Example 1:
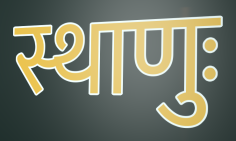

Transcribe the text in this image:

स्थाणुः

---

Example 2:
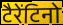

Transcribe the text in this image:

टैरेंटिनो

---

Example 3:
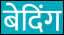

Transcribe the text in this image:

बेदिंग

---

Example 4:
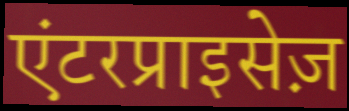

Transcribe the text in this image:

एंटरप्राइसेज़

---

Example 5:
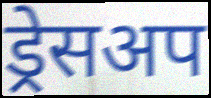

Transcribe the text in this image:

ड्रेसअप